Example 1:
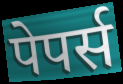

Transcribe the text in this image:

पेपर्स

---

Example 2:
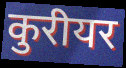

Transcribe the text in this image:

कुरीयर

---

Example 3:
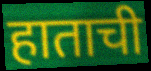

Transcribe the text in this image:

हाताची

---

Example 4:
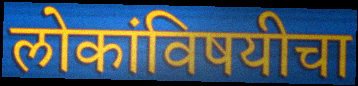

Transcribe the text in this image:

लोकांविषयीचा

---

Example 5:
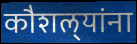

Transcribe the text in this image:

कौशल्यांना